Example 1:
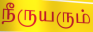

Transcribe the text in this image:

நீருயரும்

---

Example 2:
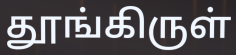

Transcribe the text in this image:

தூங்கிருள்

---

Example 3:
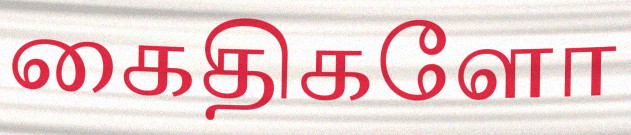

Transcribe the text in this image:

கைதிகளோ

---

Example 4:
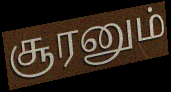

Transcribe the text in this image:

சூரனும்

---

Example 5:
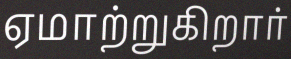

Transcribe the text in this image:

ஏமாற்றுகிறார்